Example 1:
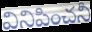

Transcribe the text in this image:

వినిపించనీ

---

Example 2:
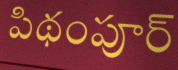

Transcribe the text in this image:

పిథంపూర్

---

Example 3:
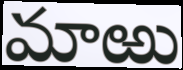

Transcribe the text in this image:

మాఱు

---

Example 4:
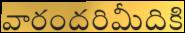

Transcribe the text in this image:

వారందరిమీదికి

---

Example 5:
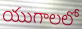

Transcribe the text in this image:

యుగాలలో